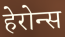
हेरोन्स